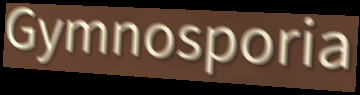
Gymnosporia